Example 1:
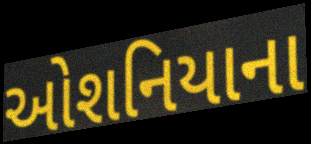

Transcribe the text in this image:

ઓશનિયાના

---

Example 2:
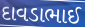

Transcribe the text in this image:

દાવડાભાઈ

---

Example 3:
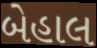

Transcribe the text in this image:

બેહાલ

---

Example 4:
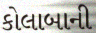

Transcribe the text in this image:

કોલાબાની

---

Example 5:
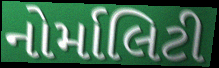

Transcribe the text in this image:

નોર્માલિટી